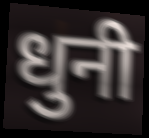
धुनी